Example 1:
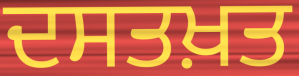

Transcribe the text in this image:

ਦਸਤਖ਼ਤ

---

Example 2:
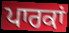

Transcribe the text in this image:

ਪਾਰਕਾਂ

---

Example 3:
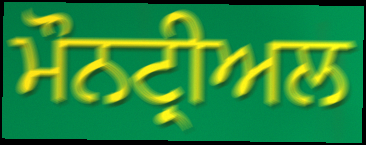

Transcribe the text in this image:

ਮੌਨਟ੍ਰੀਅਲ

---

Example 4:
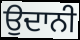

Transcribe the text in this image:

ਉਦਾਨੀ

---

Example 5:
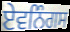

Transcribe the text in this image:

ਏਵਨਿੰਗਸ